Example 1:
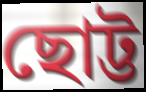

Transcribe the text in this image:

ছোট্ট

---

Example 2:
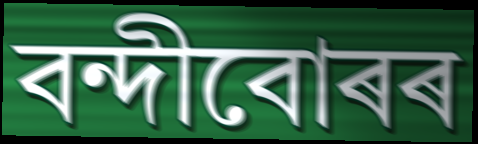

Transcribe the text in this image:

বন্দীবোৰৰ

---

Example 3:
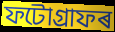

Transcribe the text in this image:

ফটোগ্ৰাফৰ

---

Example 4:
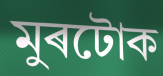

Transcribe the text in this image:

মুৰটোক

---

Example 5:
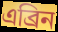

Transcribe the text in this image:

এব্ৰিন